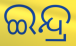
ଇନ୍ଦ୍ର